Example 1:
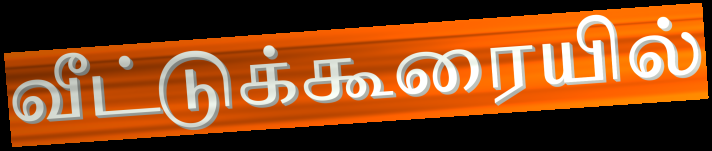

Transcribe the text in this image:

வீட்டுக்கூரையில்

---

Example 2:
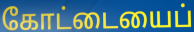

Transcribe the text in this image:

கோட்டையைப்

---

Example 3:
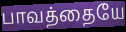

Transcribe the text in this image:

பாவத்தையே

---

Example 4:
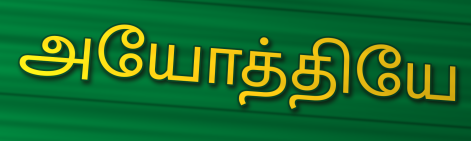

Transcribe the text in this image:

அயோத்தியே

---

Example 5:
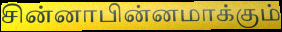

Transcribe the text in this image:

சின்னாபின்னமாக்கும்